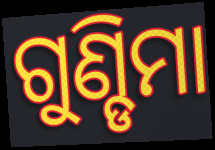
ଗୁଣ୍ଡିମା